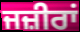
ਜਜ਼ੀਰਾਂ